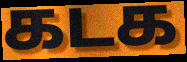
கடக